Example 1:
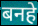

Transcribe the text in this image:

बनहे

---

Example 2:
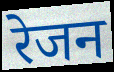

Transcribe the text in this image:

रेजन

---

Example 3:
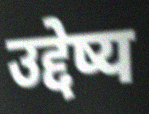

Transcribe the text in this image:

उद्देष्य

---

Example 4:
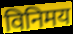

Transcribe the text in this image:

विनिमय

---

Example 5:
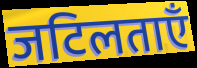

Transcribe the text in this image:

जटिलताएँ